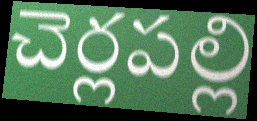
చెర్లపల్లి